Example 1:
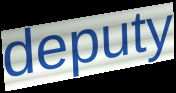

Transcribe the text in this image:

deputy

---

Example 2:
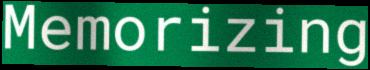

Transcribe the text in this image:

Memorizing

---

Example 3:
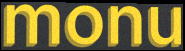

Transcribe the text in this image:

monu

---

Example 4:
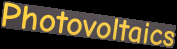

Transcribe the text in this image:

Photovoltaics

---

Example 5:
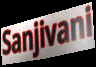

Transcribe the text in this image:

Sanjivani